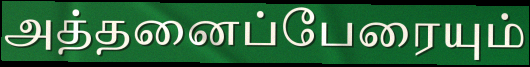
அத்தனைப்பேரையும்